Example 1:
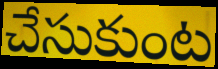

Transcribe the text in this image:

చేసుకుంట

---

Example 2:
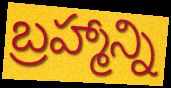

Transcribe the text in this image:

బ్రహ్మాన్ని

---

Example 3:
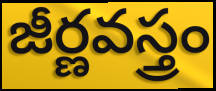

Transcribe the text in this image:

జీర్ణవస్త్రం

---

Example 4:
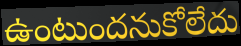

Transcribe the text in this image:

ఉంటుందనుకోలేదు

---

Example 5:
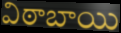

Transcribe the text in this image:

విఠాబాయి